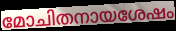
മോചിതനായശേഷം